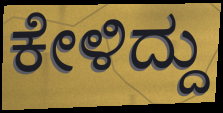
ಕೇಳಿದ್ದು